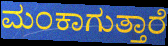
ಮಂಕಾಗುತ್ತಾರೆ